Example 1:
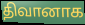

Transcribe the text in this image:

திவானாக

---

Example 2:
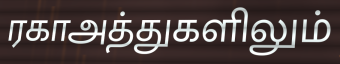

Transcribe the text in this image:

ரகாஅத்துகளிலும்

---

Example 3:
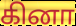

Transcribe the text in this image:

கினா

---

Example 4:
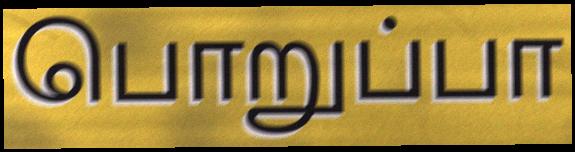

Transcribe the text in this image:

பொறுப்பா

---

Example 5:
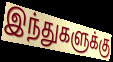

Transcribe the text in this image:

இந்துகளுக்கு